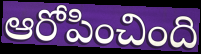
ఆరోపించింది